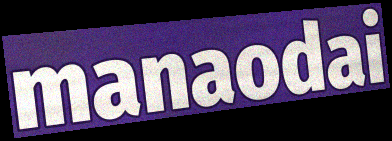
manaodai